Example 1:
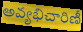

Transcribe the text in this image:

అవ్యభిచారిణీ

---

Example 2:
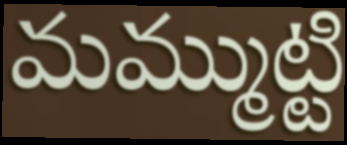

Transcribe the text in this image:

మమ్ముట్టి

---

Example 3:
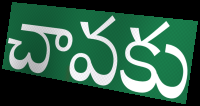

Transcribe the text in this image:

చావకు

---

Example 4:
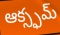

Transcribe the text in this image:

ఆక్స్ఫమ్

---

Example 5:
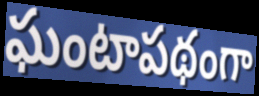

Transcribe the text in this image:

ఘంటాపథంగా